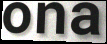
ona